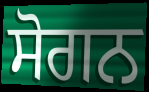
ਸੋਗਨ